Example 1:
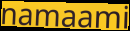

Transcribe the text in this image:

namaami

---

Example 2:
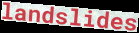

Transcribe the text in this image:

landslides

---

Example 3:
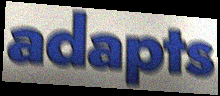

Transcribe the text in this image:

adapts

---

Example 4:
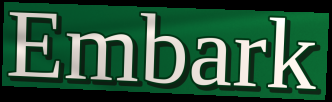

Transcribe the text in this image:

Embark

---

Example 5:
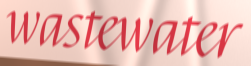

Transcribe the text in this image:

wastewater